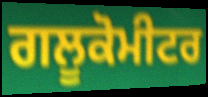
ਗਲੂਕੋਮੀਟਰ